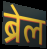
ब्रेल